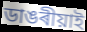
ডাঙৰীয়াই